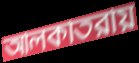
আলকাতরায়